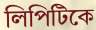
লিপিটিকে